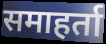
समाहर्ता